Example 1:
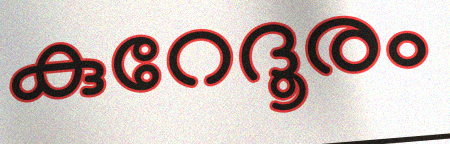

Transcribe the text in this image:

കുറേദൂരം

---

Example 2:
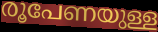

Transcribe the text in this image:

രൂപേണയുള്ള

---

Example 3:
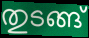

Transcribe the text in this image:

തുടങ്ങ്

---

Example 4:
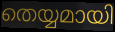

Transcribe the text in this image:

തെയ്യമായി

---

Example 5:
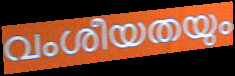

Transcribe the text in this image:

വംശീയതയും